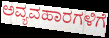
ಅವ್ಯವಹಾರಗಳಿಗೆ